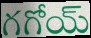
గగోయ్